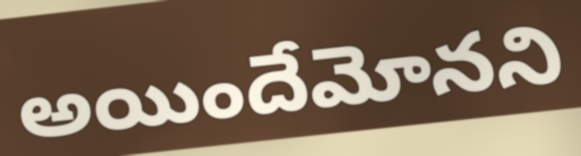
అయిందేమోనని